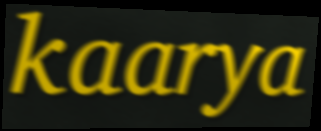
kaarya